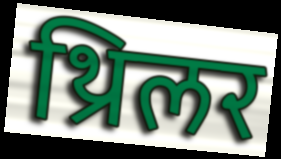
थ्रिलर